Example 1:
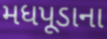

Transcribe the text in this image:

મધપૂડાના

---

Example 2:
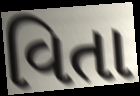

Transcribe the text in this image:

વિતા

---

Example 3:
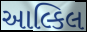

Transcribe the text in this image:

આલ્કિલ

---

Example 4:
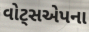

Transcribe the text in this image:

વોટ્સએપના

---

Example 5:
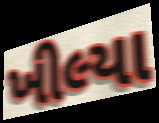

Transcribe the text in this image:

ખીલ્યા